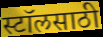
स्टॉलसाठी